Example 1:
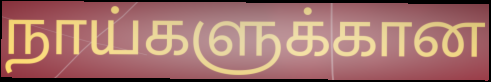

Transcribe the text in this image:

நாய்களுக்கான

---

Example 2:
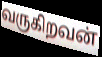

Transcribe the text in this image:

வருகிறவன்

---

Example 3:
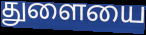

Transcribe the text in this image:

துளையை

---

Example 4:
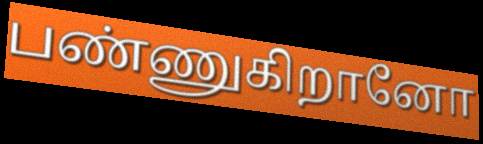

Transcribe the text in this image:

பண்ணுகிறானோ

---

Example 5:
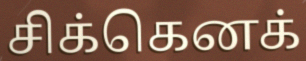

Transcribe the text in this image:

சிக்கெனக்